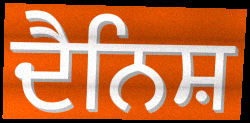
ਦੈਨਿਸ਼